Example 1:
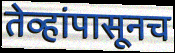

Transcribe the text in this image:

तेव्हांपासूनच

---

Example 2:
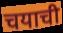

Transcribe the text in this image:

चयाची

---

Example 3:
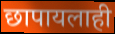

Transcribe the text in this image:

छापायलाही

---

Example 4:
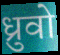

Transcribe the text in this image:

ध्रुवो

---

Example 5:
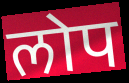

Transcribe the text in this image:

लोप